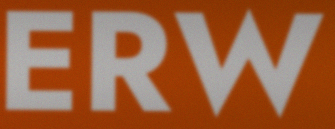
ERW